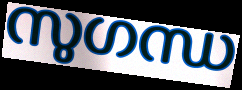
സുഗന്ധ